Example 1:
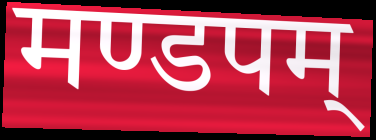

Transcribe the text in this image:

मण्डपम्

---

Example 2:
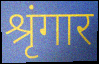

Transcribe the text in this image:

श्रृंगार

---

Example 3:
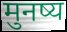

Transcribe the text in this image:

मुनष्य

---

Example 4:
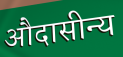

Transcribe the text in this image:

औदासीन्य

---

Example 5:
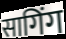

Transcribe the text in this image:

सागिंग